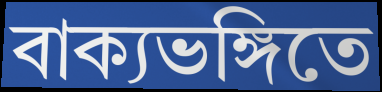
বাক্যভঙ্গিতে